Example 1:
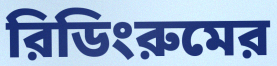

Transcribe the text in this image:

রিডিংরুমের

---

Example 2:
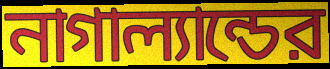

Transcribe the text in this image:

নাগাল্যান্ডের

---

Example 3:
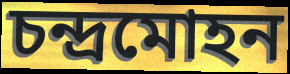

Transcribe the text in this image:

চন্দ্রমোহন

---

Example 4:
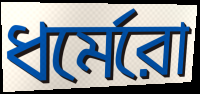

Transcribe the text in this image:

ধর্মেরো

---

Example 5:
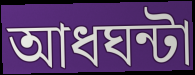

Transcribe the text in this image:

আধঘন্টা